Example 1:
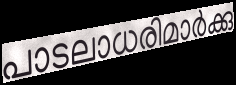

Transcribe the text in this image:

പാടലാധരിമാർക്കു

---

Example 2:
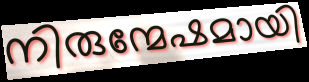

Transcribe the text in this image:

നിരുന്മേഷമായി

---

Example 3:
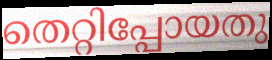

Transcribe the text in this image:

തെറ്റിപ്പോയതു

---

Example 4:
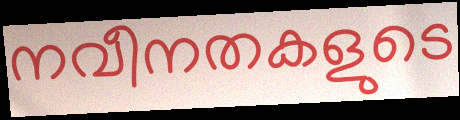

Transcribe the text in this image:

നവീനതകളുടെ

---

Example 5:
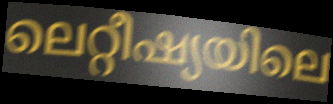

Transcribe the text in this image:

ലെറ്റീഷ്യയിലെ